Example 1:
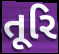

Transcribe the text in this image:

તૂરિ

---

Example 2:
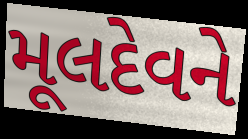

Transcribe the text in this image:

મૂલદેવને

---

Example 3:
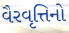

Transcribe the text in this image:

વૈરવૃત્તિનો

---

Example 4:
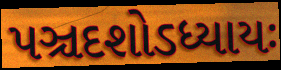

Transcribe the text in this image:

પઞ્ચદશોઽધ્યાયઃ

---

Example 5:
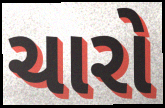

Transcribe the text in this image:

ચારો